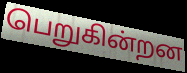
பெறுகின்றன